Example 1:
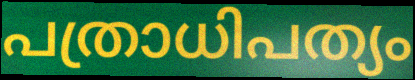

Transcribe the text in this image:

പത്രാധിപത്യം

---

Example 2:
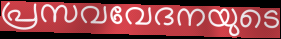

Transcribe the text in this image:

പ്രസവവേദനയുടെ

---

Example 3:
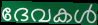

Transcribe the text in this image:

ദേവകൾ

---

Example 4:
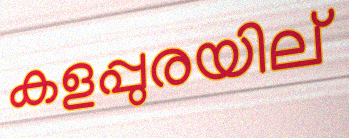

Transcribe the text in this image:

കളപ്പുരയില്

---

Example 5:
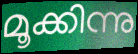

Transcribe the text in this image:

മൂക്കിന്നു